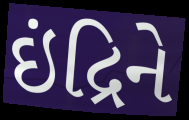
ઇંદ્રિને